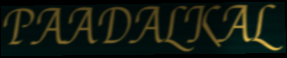
PAADALKAL